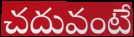
చదువంటే